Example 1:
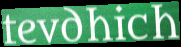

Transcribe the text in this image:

tevdhich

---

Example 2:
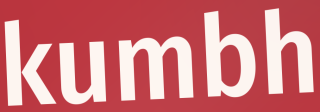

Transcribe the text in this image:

kumbh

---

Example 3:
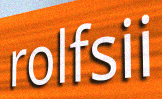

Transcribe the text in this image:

rolfsii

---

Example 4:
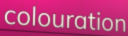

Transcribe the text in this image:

colouration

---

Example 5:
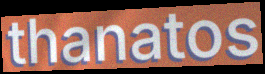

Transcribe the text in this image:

thanatos